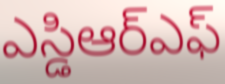
ఎస్డిఆర్ఎఫ్